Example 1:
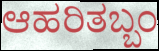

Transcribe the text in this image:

ಆಹರಿತಬ್ಬಂ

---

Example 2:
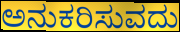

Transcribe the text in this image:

ಅನುಕರಿಸುವದು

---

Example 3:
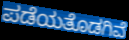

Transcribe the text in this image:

ಪಡೆಯತೊಡಗಿವೆ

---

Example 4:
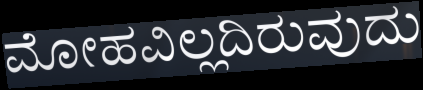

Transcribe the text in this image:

ಮೋಹವಿಲ್ಲದಿರುವುದು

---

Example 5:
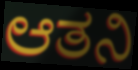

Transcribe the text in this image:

ಆತನಿ